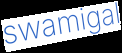
swamigal